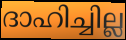
ദാഹിച്ചില്ല